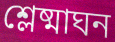
শ্লেষ্মাঘন